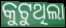
କୁଟୁଥିଲା